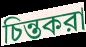
চিন্তকরা